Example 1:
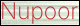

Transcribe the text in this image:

Nupoor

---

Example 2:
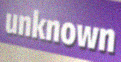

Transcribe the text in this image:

unknown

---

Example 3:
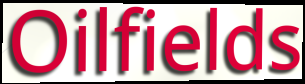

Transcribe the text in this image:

Oilfields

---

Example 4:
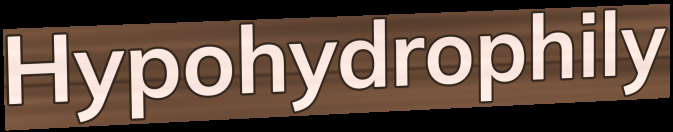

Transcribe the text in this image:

Hypohydrophily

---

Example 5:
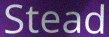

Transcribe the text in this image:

Stead